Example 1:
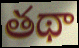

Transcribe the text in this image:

తథా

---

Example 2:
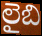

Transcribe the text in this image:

లైబి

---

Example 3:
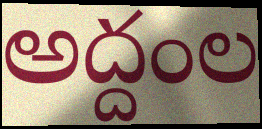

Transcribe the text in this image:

అద్దంల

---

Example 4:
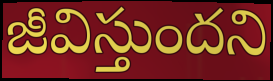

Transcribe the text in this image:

జీవిస్తుందని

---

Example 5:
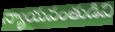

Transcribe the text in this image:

న్యాయవంతుడివి